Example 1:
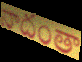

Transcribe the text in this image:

నాదంతా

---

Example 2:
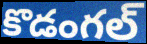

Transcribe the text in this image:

కొడంగల్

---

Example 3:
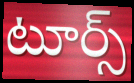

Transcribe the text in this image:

టూర్స్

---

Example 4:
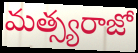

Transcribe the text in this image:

మత్స్యరాజో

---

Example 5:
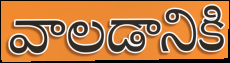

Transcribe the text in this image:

వాలడానికి